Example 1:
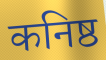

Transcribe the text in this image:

कनिष्ठ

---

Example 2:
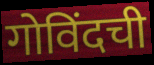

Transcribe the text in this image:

गोविंदची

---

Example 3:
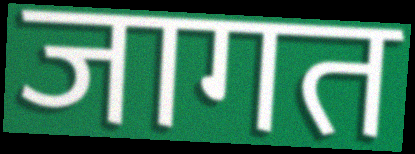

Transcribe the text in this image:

जागत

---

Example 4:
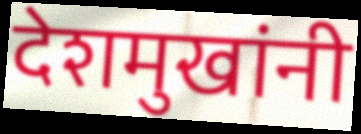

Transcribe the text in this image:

देशमुखांनी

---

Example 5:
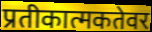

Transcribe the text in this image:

प्रतीकात्मकतेवर